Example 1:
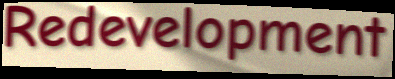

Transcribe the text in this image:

Redevelopment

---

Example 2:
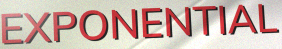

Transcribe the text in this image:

EXPONENTIAL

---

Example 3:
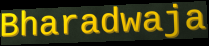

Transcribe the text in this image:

Bharadwaja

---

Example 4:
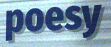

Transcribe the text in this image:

poesy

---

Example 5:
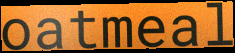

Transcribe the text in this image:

oatmeal